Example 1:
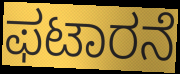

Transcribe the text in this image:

ಫಟಾರನೆ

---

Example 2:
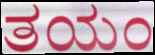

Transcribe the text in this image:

ತಯಂ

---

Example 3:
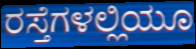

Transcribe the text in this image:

ರಸ್ತೆಗಳಲ್ಲಿಯೂ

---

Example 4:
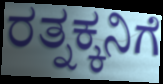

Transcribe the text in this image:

ರತ್ನಕ್ಕನಿಗೆ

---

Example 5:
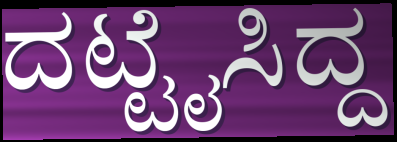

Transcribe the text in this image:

ದಟ್ಟೈಸಿದ್ದ